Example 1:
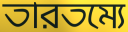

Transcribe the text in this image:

তারতম্যে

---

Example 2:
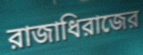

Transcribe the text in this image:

রাজাধিরাজের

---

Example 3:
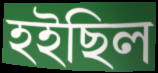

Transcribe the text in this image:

হইছিল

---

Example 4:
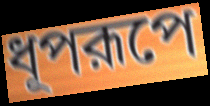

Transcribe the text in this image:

ধূপরূপে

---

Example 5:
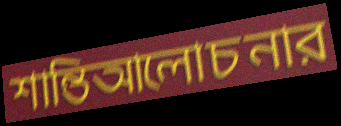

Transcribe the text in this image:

শান্তিআলোচনার